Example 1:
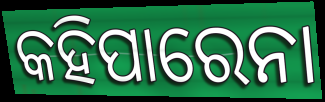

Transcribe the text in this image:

କହିପାରେନା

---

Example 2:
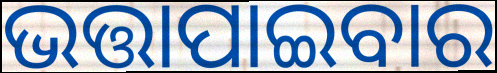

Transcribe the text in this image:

ଭତ୍ତାପାଇବାର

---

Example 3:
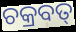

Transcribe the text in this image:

ଚକ୍ରବତ୍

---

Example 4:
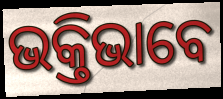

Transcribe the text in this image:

ଭକ୍ତିଭାବେ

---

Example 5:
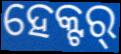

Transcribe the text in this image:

ହେକ୍ଟର୍